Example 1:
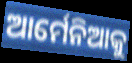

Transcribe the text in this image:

ଆର୍ମେନିଆକୁ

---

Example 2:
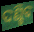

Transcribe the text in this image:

ଦଣ୍ଡିବ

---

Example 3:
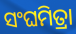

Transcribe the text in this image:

ସଂଘମିତ୍ରା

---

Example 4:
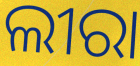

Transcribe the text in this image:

ଲୀରା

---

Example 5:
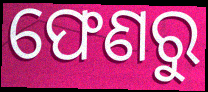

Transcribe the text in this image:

ଫେଣରୁ